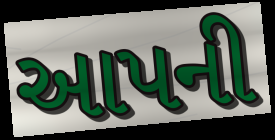
આપની